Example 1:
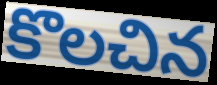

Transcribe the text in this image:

కొలచిన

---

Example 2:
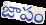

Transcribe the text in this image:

జాపం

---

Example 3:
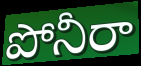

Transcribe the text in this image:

పోనీరా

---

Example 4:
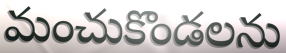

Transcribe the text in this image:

మంచుకొండలను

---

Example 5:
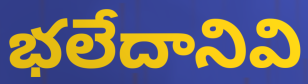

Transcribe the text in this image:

భలేదానివి